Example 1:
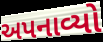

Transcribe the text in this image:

અપનાવ્યો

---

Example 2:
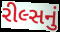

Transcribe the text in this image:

રીલ્સનું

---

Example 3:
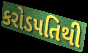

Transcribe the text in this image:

કરોડપતિથી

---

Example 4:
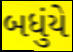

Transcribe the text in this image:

બધુંયે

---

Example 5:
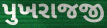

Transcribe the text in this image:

પુખરાજજી